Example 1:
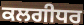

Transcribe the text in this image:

ਕਲਗੀਧਰ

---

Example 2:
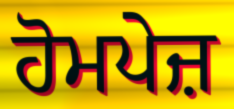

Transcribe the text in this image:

ਹੋਮਪੇਜ਼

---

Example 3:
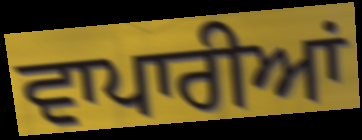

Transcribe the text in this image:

ਵਾਪਾਰੀਆਂ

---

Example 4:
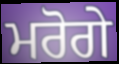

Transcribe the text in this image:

ਮਰੋਗੇ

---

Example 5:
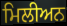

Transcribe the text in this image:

ਮਿਲੀਅਨ